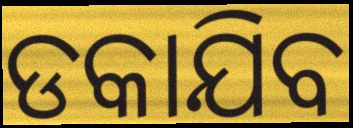
ଡକାଯିବ